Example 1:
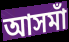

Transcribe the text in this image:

আসমাঁ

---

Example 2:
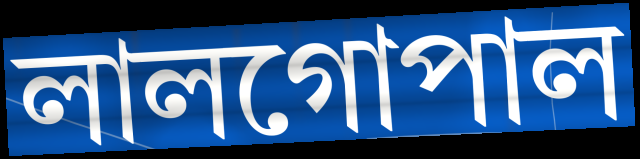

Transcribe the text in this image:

লালগোপাল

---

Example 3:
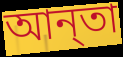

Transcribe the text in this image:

আন্‌তা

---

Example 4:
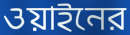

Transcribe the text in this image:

ওয়াইনের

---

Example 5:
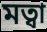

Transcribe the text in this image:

মত্বা